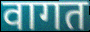
वागत